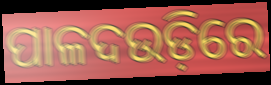
ପାଳଦଉଡ଼ିରେ